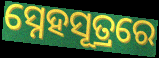
ସ୍ନେହସୂତ୍ରରେ